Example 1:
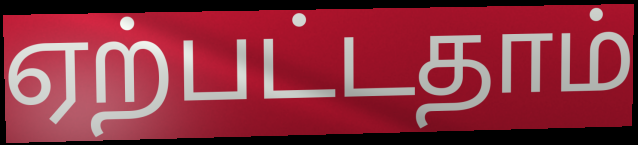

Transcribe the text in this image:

ஏற்பட்டதாம்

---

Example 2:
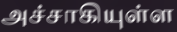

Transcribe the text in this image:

அச்சாகியுள்ள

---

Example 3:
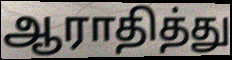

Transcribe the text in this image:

ஆராதித்து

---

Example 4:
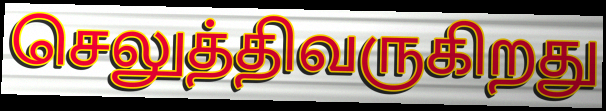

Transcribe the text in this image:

செலுத்திவருகிறது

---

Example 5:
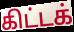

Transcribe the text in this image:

கிட்டக்